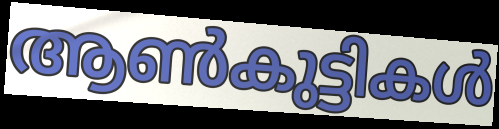
ആൺകുട്ടികൾ